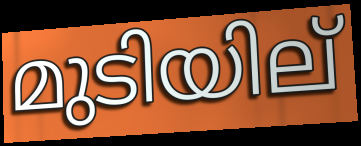
മുടിയില്